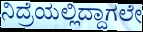
ನಿದ್ರೆಯಲ್ಲಿದ್ದಾಗಲೇ